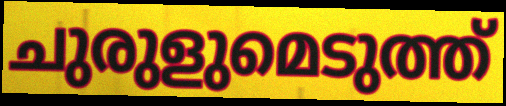
ചുരുളുമെടുത്ത്